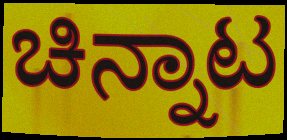
ಚಿನ್ನಾಟ